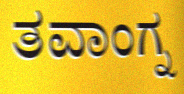
ತವಾಂಗ್ನ